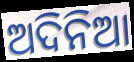
ଅଦିନିଆ